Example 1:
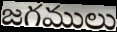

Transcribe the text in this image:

జగములు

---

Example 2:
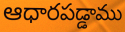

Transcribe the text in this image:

ఆధారపడ్డాము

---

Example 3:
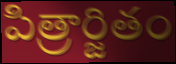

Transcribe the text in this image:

పిత్రార్జితం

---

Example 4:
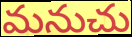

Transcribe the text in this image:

మనుచు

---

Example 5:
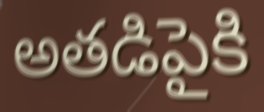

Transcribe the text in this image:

అతడిపైకి